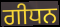
ਗੀਧਨ